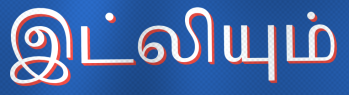
இட்லியும்